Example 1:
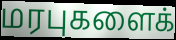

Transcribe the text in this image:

மரபுகளைக்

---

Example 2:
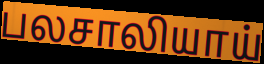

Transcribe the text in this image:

பலசாலியாய்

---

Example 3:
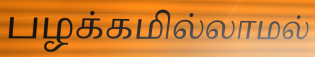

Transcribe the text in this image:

பழக்கமில்லாமல்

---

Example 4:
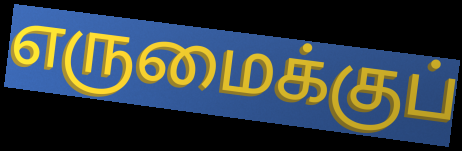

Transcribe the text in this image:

எருமைக்குப்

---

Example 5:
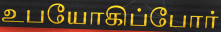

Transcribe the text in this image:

உபயோகிப்போர்